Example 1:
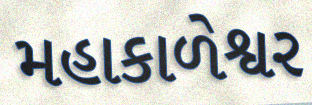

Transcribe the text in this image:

મહાકાળેશ્વર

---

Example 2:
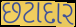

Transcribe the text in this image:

છટાદાર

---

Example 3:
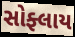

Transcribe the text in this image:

સોફ્લાય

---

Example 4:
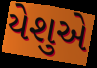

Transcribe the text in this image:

યેશુએ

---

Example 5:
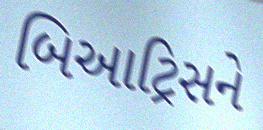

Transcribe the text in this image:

બિઆટ્રિસને